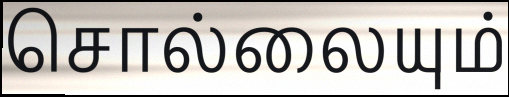
சொல்லையும்